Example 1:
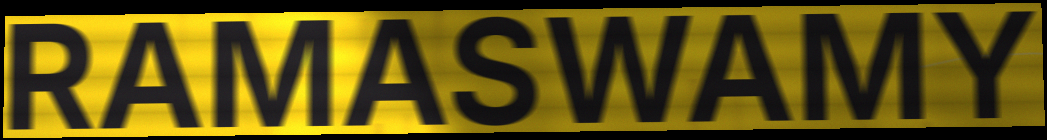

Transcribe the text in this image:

RAMASWAMY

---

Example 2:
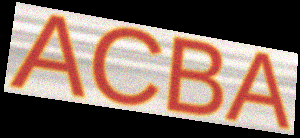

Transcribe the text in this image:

ACBA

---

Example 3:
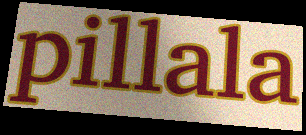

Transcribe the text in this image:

pillala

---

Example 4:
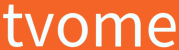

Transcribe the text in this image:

tvome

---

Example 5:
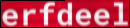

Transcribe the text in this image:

erfdeel